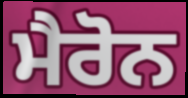
ਮੈਰੋਨ